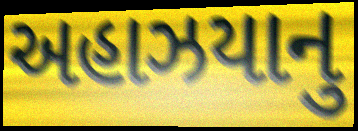
અહાઝયાનુ